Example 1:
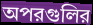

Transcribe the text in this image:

অপরগুলির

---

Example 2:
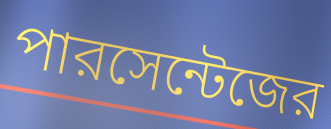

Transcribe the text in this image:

পারসেন্টেজের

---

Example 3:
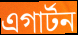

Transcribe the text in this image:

এগার্টন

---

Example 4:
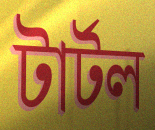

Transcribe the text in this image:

টার্টল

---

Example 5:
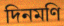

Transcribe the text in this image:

দিনমণি